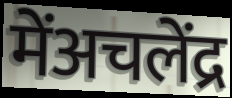
मेंअचलेंद्र